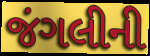
જંગલીની